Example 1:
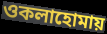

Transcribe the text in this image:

ওকলাহোমায়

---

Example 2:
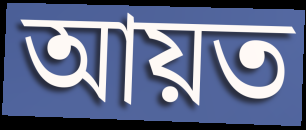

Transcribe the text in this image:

আয়ত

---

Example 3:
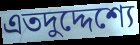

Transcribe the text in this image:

এতদুদ্দেশ্যে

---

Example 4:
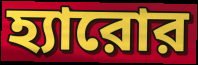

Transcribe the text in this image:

হ্যারোর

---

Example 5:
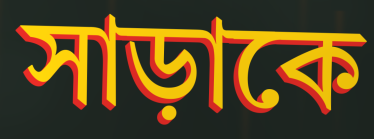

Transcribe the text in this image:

সাড়াকে